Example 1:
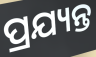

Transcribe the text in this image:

ପ୍ରଯ୍ୟନ୍ତ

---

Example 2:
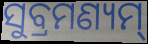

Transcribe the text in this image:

ସୁବ୍ରମଣ୍ୟମ୍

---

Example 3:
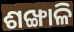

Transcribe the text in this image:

ଶଙ୍ଖାଳି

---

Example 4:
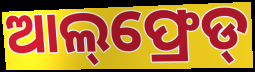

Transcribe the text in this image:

ଆଲ୍‌ଫ୍ରେଡ୍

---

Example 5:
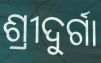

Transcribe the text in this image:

ଶ୍ରୀଦୁର୍ଗା